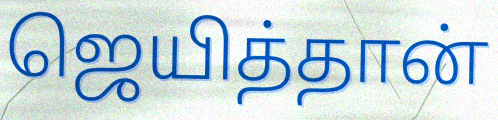
ஜெயித்தான்